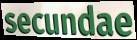
secundae